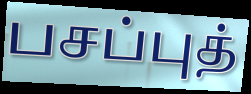
பசப்புத்